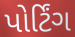
પોર્ટિંગ